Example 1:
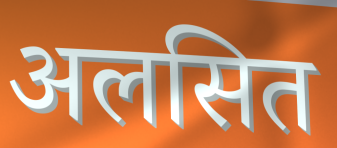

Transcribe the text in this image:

अलसित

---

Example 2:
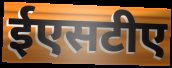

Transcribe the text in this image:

ईएसटीए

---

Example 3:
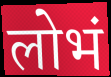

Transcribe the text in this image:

लोभं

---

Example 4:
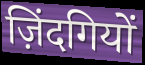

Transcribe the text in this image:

ज़िंदगियों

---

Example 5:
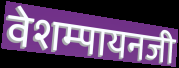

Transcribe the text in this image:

वेशम्पायनजी